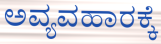
ಅವ್ಯವಹಾರಕ್ಕೆ